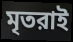
মৃতরাই